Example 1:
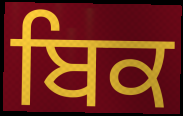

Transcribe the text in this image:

ਬਿਕ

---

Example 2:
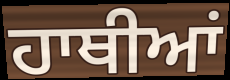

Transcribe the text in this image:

ਹਾਥੀਆਂ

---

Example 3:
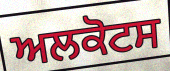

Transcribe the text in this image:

ਅਲਕੋਟਸ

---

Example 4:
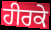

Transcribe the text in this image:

ਹੀਰਕੇ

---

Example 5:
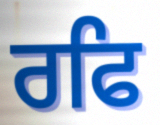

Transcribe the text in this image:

ਰਫਿ